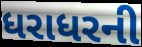
ધરાધરની